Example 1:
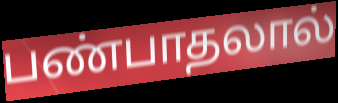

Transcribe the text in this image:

பண்பாதலால்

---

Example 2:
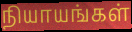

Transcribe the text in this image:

நியாயங்கள்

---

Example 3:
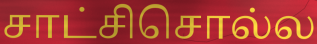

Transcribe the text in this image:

சாட்சிசொல்ல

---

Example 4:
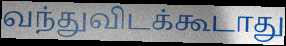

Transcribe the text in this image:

வந்துவிடக்கூடாது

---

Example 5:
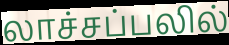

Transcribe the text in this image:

லாச்சப்பலில்